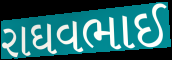
રાઘવભાઈ